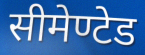
सीमेण्टेड